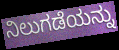
ನಿಲುಗಡೆಯನ್ನು